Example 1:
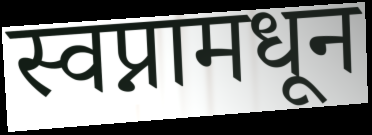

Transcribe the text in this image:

स्वप्नामधून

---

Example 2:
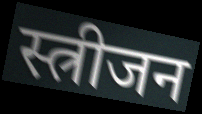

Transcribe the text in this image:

स्त्रीजन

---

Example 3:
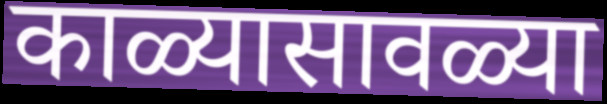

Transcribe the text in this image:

काळ्यासावळ्या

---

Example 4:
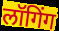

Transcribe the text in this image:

लॉगिंग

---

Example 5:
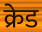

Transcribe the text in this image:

क्रेड